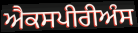
ਐਕਸਪੀਰੀਅੰਸ